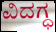
ವಿದಗ್ಧ